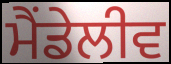
ਮੈਂਡੇਲੀਵ